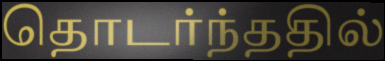
தொடர்ந்ததில்